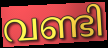
വണ്ടി